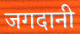
जगदानी